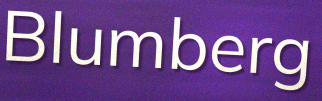
Blumberg